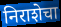
निराशेचा